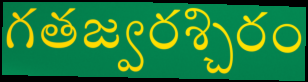
గతజ్వరశ్చిరం